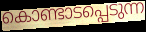
കൊണ്ടാടപ്പെടുന്ന